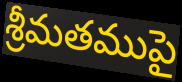
శ్రీమతముపై